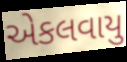
એકલવાયુ